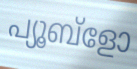
പ്യൂബ്ളോ